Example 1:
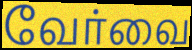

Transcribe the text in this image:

வேர்வை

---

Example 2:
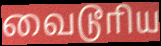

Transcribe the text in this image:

வைடூரிய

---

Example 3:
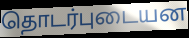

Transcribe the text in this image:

தொடர்புடையன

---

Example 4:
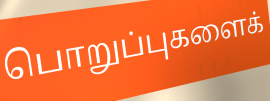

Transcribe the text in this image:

பொறுப்புகளைக்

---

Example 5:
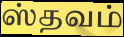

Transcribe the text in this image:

ஸ்தவம்